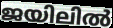
ജയിലിൽ